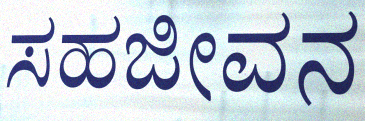
ಸಹಜೀವನ